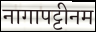
नागापट्टीनम